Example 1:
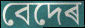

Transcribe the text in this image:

বেদেৰ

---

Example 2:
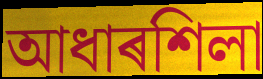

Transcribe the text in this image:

আধাৰশিলা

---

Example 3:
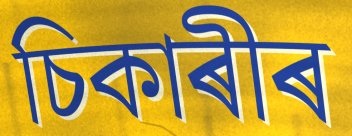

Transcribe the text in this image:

চিকাৰীৰ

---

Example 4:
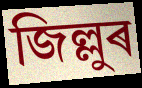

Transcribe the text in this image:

জিল্লুৰ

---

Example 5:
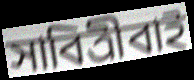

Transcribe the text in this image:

সাবিত্ৰীবাই